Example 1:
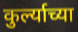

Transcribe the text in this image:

कुर्ल्याच्या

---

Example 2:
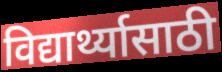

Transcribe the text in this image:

विद्यार्थ्यासाठी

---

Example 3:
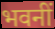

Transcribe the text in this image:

भवनीं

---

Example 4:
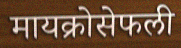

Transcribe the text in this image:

मायक्रोसेफली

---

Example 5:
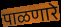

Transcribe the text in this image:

पाळणारे